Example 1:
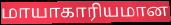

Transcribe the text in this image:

மாயாகாரியமான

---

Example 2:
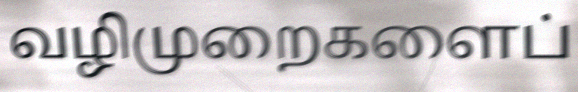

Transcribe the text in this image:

வழிமுறைகளைப்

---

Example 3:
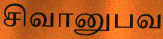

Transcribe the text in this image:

சிவானுபவ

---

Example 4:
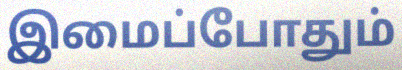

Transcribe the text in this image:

இமைப்போதும்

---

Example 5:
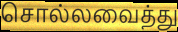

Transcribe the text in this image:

சொல்லவைத்து